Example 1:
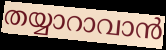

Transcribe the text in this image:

തയ്യാറാവാൻ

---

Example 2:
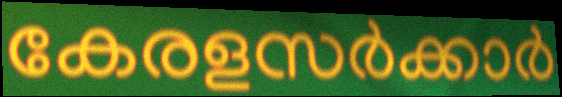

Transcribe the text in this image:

കേരളസർക്കാർ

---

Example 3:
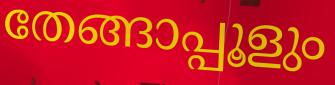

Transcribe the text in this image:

തേങ്ങാപ്പൂളും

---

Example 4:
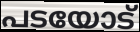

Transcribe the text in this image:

പടയോട്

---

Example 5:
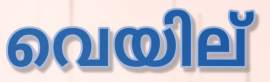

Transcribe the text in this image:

വെയില്